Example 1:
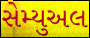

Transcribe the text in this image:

સેમ્યુઅલ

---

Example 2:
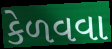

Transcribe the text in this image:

કેળવવા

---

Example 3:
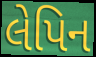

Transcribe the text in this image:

લેપિન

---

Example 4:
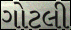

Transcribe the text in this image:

ગોટલી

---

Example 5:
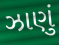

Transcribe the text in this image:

ઝાણું